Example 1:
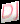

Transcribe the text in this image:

DJ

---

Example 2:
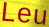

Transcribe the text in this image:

Leu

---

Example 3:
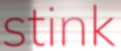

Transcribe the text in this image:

stink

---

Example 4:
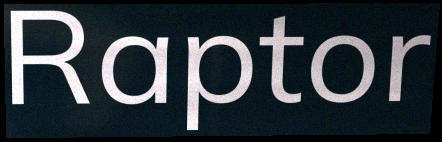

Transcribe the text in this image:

Raptor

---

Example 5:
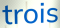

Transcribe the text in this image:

trois